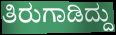
ತಿರುಗಾಡಿದ್ದು